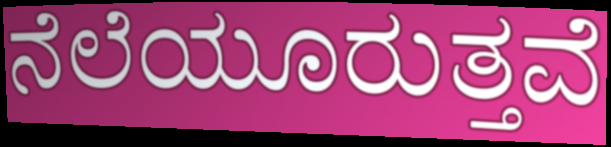
ನೆಲೆಯೂರುತ್ತವೆ